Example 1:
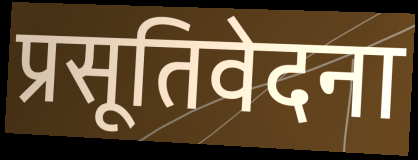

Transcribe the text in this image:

प्रसूतिवेदना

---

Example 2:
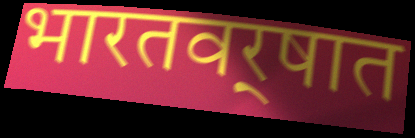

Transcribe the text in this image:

भारतवर्षात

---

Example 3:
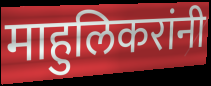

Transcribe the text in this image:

माहुलिकरांनी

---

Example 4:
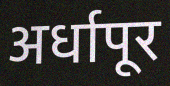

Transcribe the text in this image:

अर्धापूर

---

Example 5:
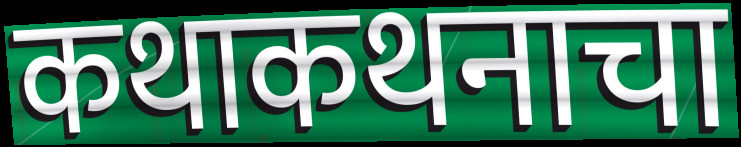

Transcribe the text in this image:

कथाकथनाचा